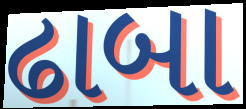
ઢાબા